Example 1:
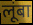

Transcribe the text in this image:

लूंबा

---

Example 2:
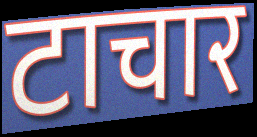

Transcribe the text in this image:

टाचार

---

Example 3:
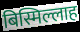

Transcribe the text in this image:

बिस्मिल्‍लाह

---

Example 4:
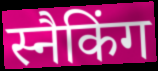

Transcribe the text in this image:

स्नैकिंग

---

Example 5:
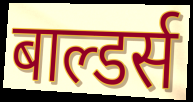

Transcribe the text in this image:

बाल्डर्स